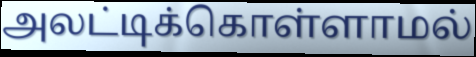
அலட்டிக்கொள்ளாமல்